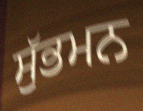
ਸੁੱਭਮਨ